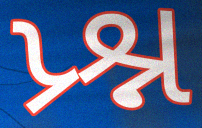
પ્ર્શ્ન